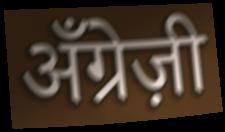
अँग्रेज़ी